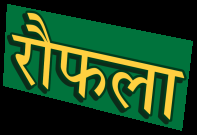
रौफला